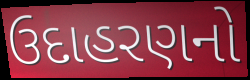
ઉદાહરણનો